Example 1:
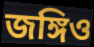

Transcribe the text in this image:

জঙ্গিও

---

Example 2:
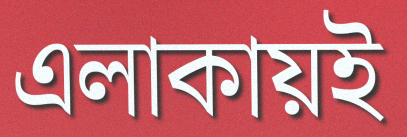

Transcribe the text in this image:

এলাকায়ই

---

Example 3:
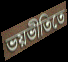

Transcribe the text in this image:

ভয়ভীতিতে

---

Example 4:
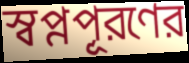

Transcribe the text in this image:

স্বপ্নপূরণের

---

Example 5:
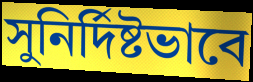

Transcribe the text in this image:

সুনির্দিষ্টভাবে